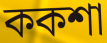
ককশা